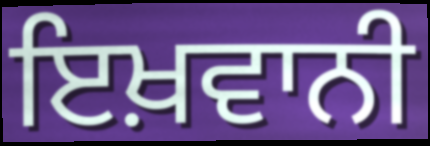
ਇਖ਼ਵਾਨੀ